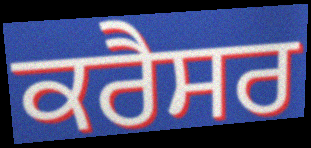
ਕਰੈਸਰ